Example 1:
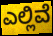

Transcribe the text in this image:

ಎಲ್ಲಿವೆ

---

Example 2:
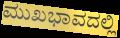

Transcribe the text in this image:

ಮುಖಭಾವದಲ್ಲಿ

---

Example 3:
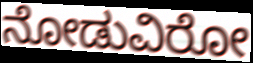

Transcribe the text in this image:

ನೋಡುವಿರೋ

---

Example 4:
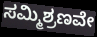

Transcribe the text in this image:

ಸಮ್ಮಿಶ್ರಣವೇ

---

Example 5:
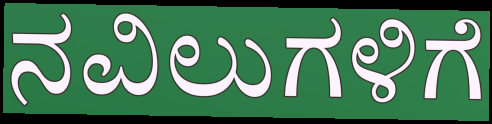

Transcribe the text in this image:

ನವಿಲುಗಳಿಗೆ